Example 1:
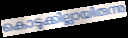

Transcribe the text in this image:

കൊടുക്കില്ലായിരുന്നു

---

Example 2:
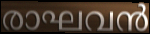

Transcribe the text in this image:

രാഘവൻ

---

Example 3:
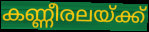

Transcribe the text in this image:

കണ്ണീരലയ്ക്ക്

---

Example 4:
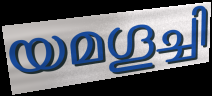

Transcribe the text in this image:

യമഗൂച്ചി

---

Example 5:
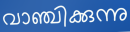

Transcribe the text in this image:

വാഞ്ചിക്കുന്നു